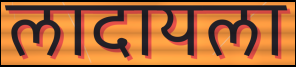
लादायला